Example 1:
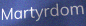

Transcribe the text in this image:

Martyrdom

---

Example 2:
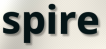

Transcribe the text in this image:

spire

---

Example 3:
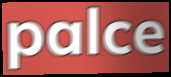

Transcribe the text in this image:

palce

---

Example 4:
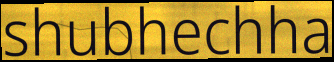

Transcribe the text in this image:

shubhechha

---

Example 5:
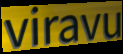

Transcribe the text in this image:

viravu